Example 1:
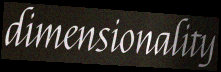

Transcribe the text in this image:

dimensionality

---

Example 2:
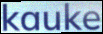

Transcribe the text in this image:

kauke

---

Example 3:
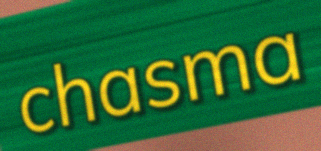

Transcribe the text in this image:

chasma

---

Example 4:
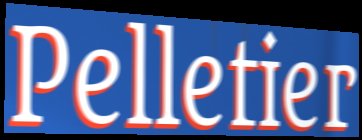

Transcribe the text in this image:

Pelletier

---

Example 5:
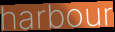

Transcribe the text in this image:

harbour